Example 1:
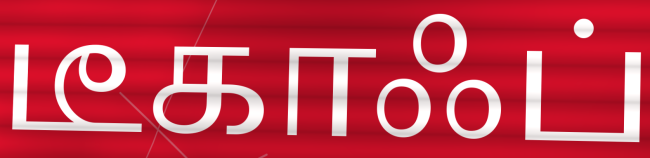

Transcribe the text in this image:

டீகாஃப்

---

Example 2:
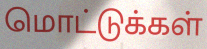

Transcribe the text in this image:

மொட்டுக்கள்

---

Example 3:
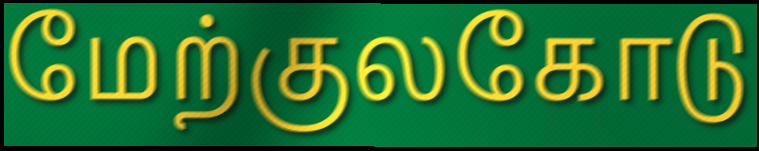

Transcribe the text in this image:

மேற்குலகோடு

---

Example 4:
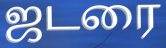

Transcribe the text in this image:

ஜடரை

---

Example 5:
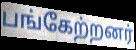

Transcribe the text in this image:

பங்கேற்றனர்